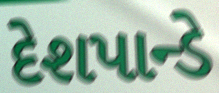
દેશપાન્ડે